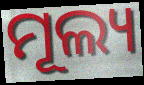
ମୂଲ୍ୟ